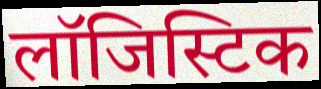
लॉजिस्टिक